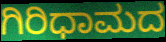
ಗಿರಿಧಾಮದ